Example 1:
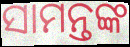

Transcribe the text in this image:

ସାମନ୍ତଙ୍କ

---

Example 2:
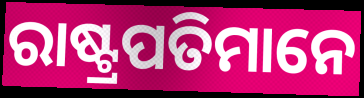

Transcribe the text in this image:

ରାଷ୍ଟ୍ରପତିମାନେ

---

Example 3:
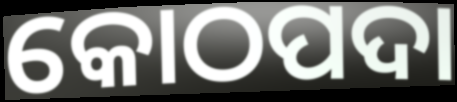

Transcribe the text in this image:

କୋଠପଦା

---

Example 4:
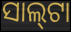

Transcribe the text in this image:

ସାଲ୍‌ଟା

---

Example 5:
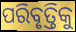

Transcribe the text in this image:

ପରିବୃତ୍ତିକୁ